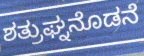
ಶತ್ರುಘ್ನನೊಡನೆ